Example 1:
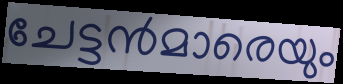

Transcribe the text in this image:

ചേട്ടൻമാരെയും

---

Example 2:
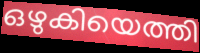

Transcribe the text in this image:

ഒഴുകിയെത്തി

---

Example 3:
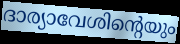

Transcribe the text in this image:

ദാര്യാവേശിന്റെയും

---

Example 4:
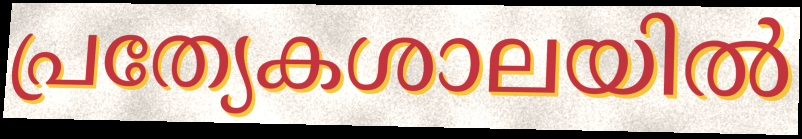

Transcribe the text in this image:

പ്രത്യേകശാലയിൽ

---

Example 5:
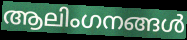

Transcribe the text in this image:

ആലിംഗനങ്ങൾ